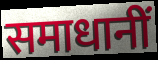
समाधानीं